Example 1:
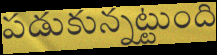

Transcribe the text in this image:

పడుకున్నట్టుంది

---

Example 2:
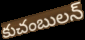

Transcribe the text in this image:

కుచంబులన్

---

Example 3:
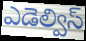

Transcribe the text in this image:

ఎడెల్విస్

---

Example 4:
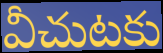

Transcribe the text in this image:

వీచుటకు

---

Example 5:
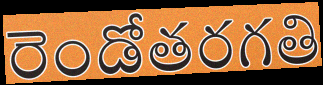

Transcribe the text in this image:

రెండోతరగతి